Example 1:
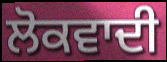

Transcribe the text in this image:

ਲੋਕਵਾਦੀ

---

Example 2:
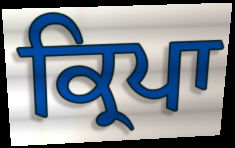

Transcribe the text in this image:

ਕ੍ਰਿਪਾ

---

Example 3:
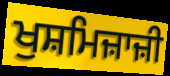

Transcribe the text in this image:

ਖੁਸ਼ਮਿਜ਼ਾਜ਼ੀ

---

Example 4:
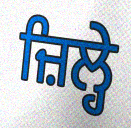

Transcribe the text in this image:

ਜ਼ਿਲ੍ਹੇ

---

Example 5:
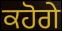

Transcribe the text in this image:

ਕਹੋਗੇ